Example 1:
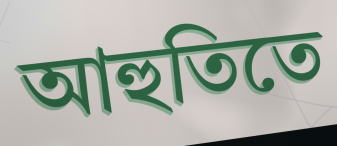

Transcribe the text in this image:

আহুতিতে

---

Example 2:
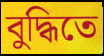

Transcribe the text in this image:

বুদ্ধিতে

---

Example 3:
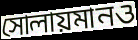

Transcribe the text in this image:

সোলায়মানও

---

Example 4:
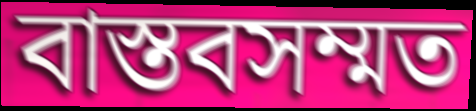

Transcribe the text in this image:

বাস্তবসম্মত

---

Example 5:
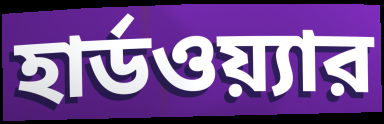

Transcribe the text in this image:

হার্ডওয়্যার